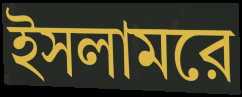
ইসলামরে